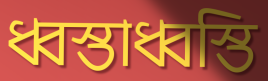
ধ্বস্তাধ্বস্তি